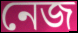
নেজ